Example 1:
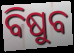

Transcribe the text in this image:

ବିଷୁବ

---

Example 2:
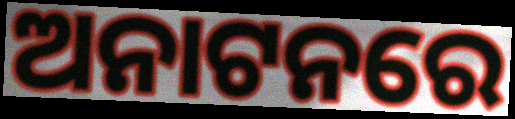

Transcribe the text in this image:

ଅନାଟନରେ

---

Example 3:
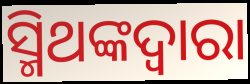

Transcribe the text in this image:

ସ୍ମିଥଙ୍କଦ୍ୱାରା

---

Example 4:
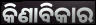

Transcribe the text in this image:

କିଣାବିକାର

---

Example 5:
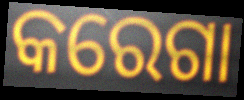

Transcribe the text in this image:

କରେଗା